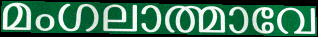
മംഗലാത്മാവേ